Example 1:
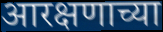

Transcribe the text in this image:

आरक्षणाच्या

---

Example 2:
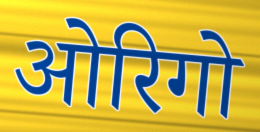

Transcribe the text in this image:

ओरिगो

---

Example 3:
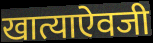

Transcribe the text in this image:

खात्याऐवजी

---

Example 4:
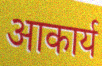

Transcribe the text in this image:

आकार्य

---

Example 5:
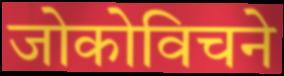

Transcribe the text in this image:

जोकोविचने